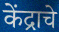
केंद्राचे